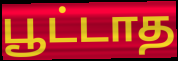
பூட்டாத